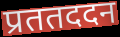
प्रततददन